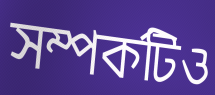
সম্পর্কটিও